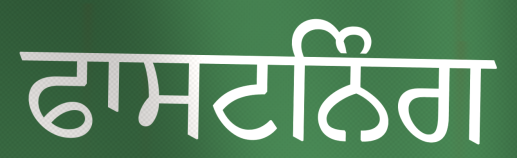
ਫਾਸਟਨਿੰਗ